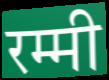
रम्मी